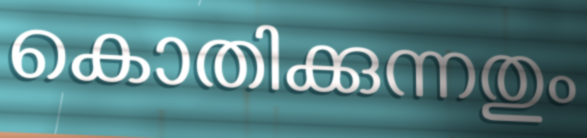
കൊതിക്കുന്നതും